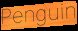
Penguin